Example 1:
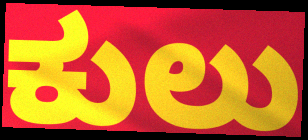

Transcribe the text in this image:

ಕುಲು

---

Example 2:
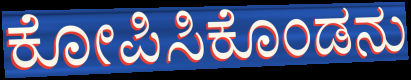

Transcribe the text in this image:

ಕೋಪಿಸಿಕೊಂಡನು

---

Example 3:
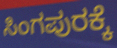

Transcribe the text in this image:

ಸಿಂಗಪುರಕ್ಕೆ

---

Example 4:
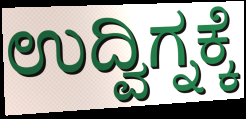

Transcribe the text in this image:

ಉದ್ವಿಗ್ನಕ್ಕೆ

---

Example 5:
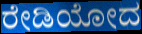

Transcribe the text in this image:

ರೇಡಿಯೋದ